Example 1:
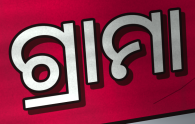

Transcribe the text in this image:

ଗ୍ରାମା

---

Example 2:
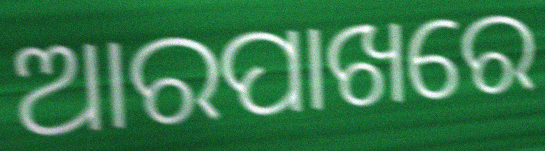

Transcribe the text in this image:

ଆରପାଖରେ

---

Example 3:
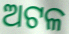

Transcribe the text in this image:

ଅଟଳ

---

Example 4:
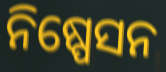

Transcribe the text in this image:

ନିଷ୍ପେସନ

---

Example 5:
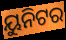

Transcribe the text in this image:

ୟୁନିଟର